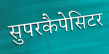
सुपरकैपेसिटर